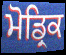
ਮੋਡ੍ਰਿਕ